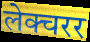
लेक्‍चरर